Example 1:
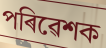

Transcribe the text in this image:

পৰিৱেশক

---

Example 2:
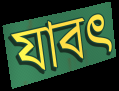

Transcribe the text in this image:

যাবৎ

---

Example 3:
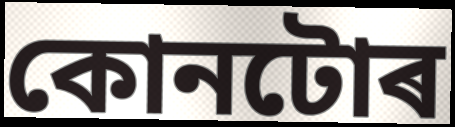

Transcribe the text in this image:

কোনটোৰ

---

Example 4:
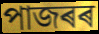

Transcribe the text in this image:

পাজৰৰ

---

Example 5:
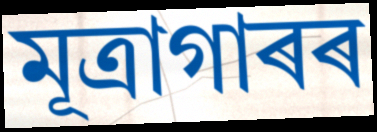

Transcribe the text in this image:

মূত্ৰাগাৰৰ